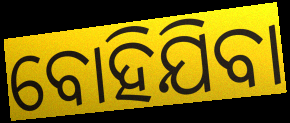
ବୋହିଯିବା